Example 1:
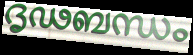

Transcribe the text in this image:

ദൃഢബന്ധം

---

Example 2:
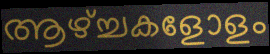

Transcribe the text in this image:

ആഴ്ച്ചകളോളം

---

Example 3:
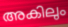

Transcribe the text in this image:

അകിലും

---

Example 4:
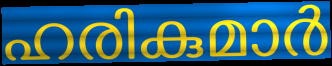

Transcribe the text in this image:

ഹരികുമാർ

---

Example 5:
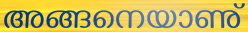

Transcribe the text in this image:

അങ്ങനെയാണു്